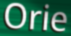
Orie